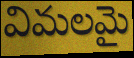
విమలమై